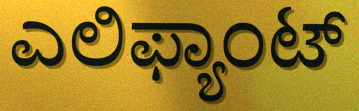
ಎಲಿಫ್ಯಾಂಟ್